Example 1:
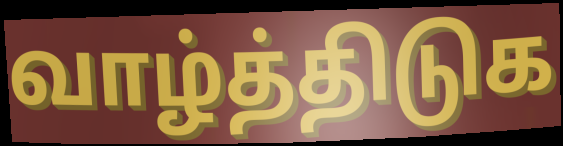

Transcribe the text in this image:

வாழ்த்திடுக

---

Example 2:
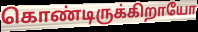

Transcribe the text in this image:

கொண்டிருக்கிறாயோ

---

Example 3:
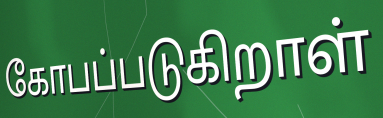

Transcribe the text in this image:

கோபப்படுகிறாள்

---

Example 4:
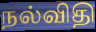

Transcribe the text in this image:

நல்விதி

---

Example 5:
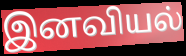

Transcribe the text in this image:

இனவியல்